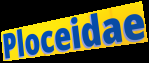
Ploceidae